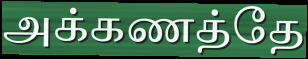
அக்கணத்தே